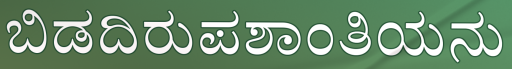
ಬಿಡದಿರುಪಶಾಂತಿಯನು